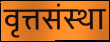
वृत्तसंस्था